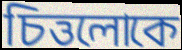
চিত্তলোকে